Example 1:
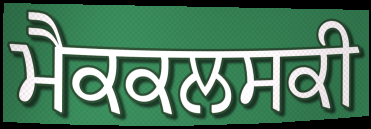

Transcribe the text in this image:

ਮੈਕਕਲਸਕੀ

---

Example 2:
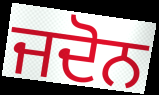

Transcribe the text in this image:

ਜਦੋਨ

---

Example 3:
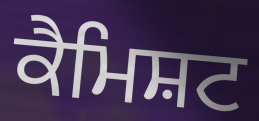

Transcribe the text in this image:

ਕੈਮਿਸ਼ਟ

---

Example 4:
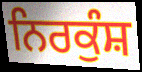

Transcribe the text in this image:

ਨਿਰਕੁੰਸ਼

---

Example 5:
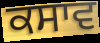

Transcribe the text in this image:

ਕਸਾਵ